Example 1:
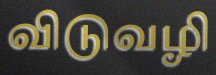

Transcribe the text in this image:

விடுவழி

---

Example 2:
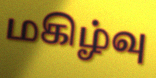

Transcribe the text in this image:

மகிழ்வு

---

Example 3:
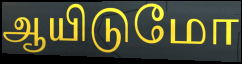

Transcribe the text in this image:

ஆயிடுமோ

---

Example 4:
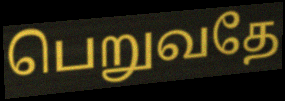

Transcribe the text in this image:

பெறுவதே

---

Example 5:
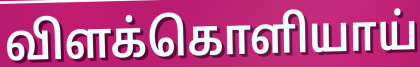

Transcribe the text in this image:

விளக்கொளியாய்